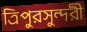
ত্রিপুরসুন্দরী